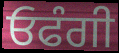
ਓਫੰਗੀ